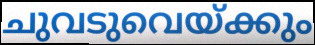
ചുവടുവെയ്ക്കും